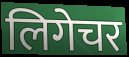
लिगेचर